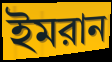
ইমরান